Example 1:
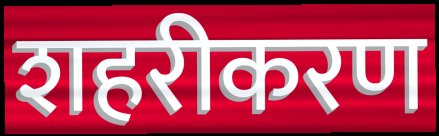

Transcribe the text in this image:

शहरीकरण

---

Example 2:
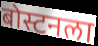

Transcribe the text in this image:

बोस्टनला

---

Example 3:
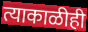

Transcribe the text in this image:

त्याकाळीही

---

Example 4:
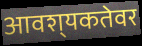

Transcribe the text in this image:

आवश्यकतेवर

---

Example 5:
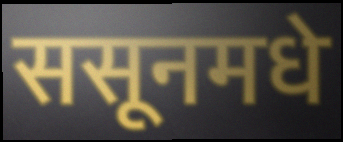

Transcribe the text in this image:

ससूनमधे